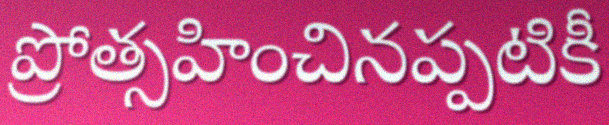
ప్రోత్సహించినప్పటికీ